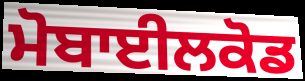
ਮੋਬਾਈਲਕੋਡ